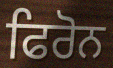
ਫਿਰੋਨ